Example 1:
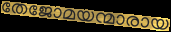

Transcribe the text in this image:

തേജോമയന്മാരായ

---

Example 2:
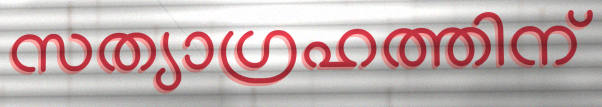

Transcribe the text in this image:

സത്യാഗ്രഹത്തിന്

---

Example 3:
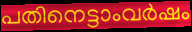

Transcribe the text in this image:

പതിനെട്ടാംവർഷം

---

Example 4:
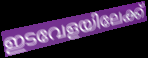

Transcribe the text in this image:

ഇടവേളയിലേക്ക്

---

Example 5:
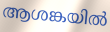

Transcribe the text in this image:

ആശങ്കയിൽ